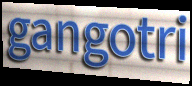
gangotri